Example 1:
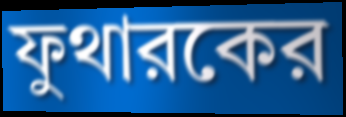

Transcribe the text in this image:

ফুথারকের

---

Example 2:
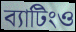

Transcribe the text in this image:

ব্যাটিংও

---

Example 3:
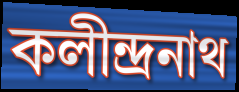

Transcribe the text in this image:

কলীন্দ্রনাথ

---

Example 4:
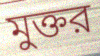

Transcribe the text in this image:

মুক্তর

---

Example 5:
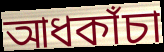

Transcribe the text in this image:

আধকাঁচা